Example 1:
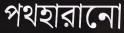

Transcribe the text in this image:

পথহারানো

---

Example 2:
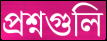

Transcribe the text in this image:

প্রশ্নগুলি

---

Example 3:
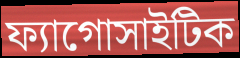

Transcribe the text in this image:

ফ্যাগোসাইটিক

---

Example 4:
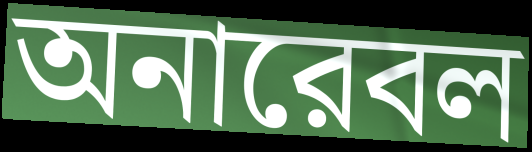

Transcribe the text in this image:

অনারেবল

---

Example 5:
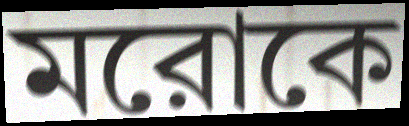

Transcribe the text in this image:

মরোকে